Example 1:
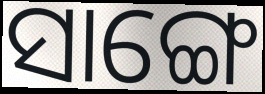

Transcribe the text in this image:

ସାଙ୍ଗେ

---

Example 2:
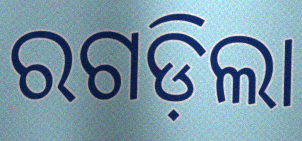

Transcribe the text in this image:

ରଗଡ଼ିଲା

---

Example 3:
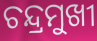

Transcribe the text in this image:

ଚନ୍ଦ୍ରମୁଖୀ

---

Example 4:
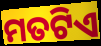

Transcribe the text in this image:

ମତଟିଏ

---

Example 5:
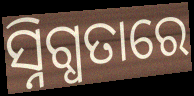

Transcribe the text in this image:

ସ୍ନିଗ୍ଧତାରେ